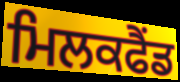
ਮਿਲਕਫੈਂਡ